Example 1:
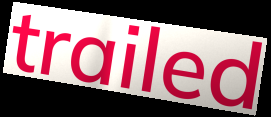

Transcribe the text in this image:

trailed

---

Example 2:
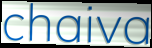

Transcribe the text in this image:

chaiva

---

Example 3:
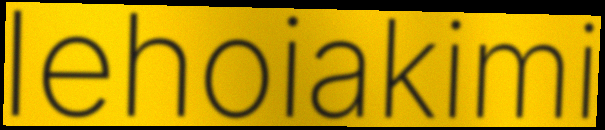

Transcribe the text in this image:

Iehoiakimi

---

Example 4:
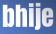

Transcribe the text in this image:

bhije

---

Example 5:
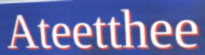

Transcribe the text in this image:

Ateetthee